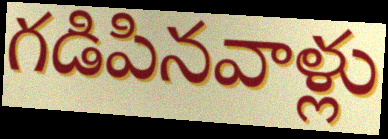
గడిపినవాళ్లు